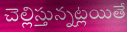
చెల్లిస్తున్నట్లయితే